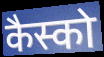
कैस्को